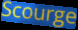
Scourge